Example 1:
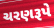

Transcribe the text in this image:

ચરણરૂપે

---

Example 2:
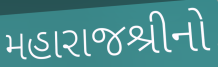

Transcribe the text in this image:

મહારાજશ્રીનો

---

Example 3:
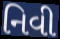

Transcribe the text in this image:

નિવી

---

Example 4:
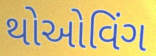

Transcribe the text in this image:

થોઓવિંગ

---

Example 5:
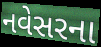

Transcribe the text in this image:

નવેસરના